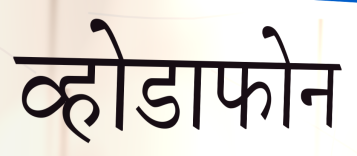
व्होडाफोन